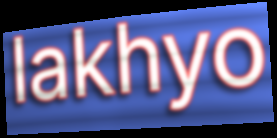
lakhyo